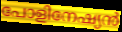
പോളിനേഷ്യൻ